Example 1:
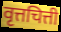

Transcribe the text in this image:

वृत्तचित्ती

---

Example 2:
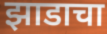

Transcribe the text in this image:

झाडाचा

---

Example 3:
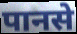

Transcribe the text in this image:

पानसे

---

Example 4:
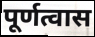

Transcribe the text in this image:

पूर्णत्वास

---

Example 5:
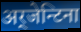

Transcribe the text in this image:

अर्जेन्टिना